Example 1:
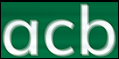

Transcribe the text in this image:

acb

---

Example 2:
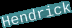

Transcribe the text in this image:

Hendrick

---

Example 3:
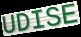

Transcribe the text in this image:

UDISE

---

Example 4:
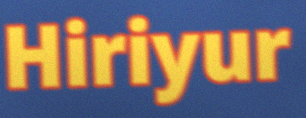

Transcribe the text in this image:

Hiriyur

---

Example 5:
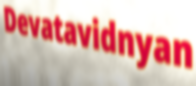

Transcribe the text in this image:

Devatavidnyan